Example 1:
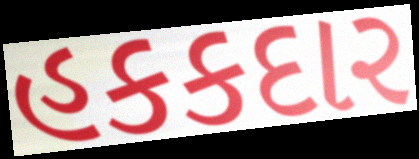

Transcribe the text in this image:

હકકદાર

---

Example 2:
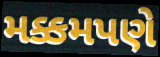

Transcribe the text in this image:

મક્કમપણે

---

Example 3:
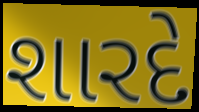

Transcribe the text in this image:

શારદે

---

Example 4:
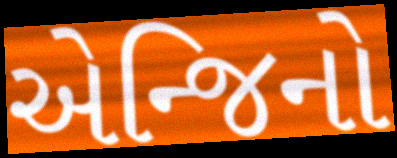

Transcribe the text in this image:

એન્જિનો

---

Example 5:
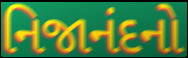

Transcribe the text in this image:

નિજાનંદનો